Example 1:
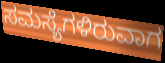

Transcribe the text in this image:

ಸಮಸ್ಯೆಗಳಿರುವಾಗ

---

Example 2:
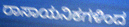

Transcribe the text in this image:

ರಾಸಾಯನಿಕಗಳಿಂದ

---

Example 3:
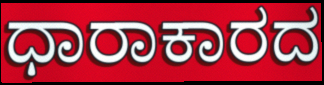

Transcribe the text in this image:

ಧಾರಾಕಾರದ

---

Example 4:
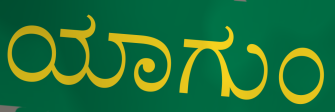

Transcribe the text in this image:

ಯಾಗುಂ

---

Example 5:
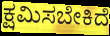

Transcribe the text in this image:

ಕ್ಷಮಿಸಬೇಕಿದೆ